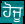
ਹੋਜੂ